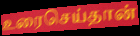
உரைசெய்தான்